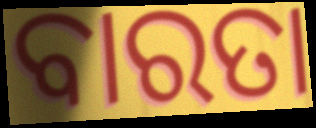
ବାରତା